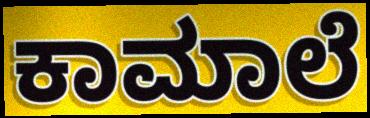
ಕಾಮಾಲೆ